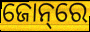
ଜୋନ୍‌ରେ